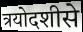
त्रयोदशीसे